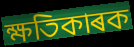
ক্ষতিকাৰক